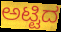
ಅಟ್ಟಿದ